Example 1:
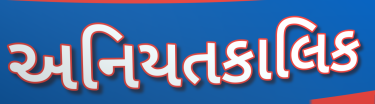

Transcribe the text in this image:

અનિયતકાલિક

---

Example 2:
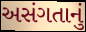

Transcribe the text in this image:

અસંગતાનું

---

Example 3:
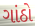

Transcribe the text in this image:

ગાંઠો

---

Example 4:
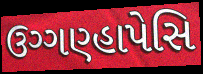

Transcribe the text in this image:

ઉગ્ગણ્હાપેસિ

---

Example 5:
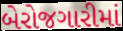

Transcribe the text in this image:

બેરોજગારીમાં